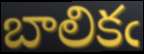
బాలికఁ